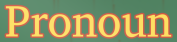
Pronoun